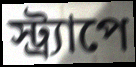
স্ট্র্যাপে